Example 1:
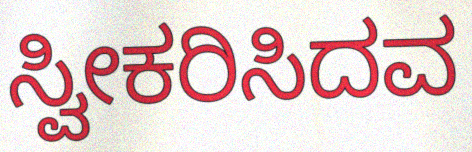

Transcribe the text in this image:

ಸ್ವೀಕರಿಸಿದವ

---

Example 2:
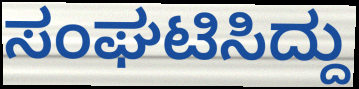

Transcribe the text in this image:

ಸಂಘಟಿಸಿದ್ದು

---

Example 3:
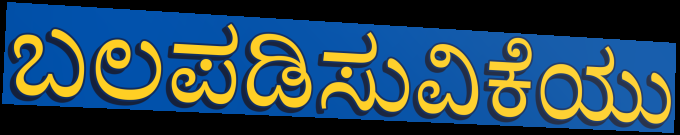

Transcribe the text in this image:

ಬಲಪಡಿಸುವಿಕೆಯು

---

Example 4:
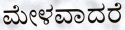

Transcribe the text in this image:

ಮೇಳವಾದರೆ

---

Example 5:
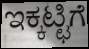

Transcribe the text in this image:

ಇಕ್ಕಟ್ಟಿಗೆ